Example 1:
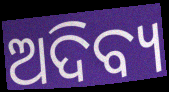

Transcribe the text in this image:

ଅଦିବ୍ୟ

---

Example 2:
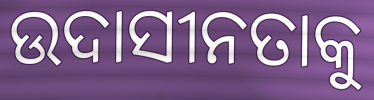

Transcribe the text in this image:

ଉଦାସୀନତାକୁ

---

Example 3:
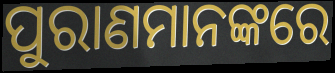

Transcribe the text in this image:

ପୁରାଣମାନଙ୍କରେ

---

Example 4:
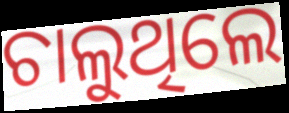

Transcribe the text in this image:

ଚାଲୁଥିଲେ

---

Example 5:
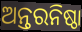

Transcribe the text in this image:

ଅନ୍ତରନିଷ୍ଠା